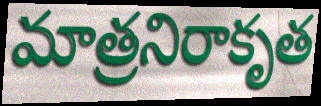
మాత్రనిరాకృత